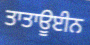
ਤਾਤਾਊਈਨ